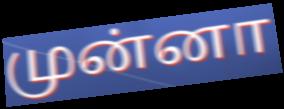
முன்னா